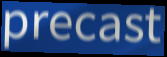
precast